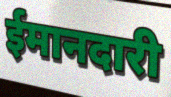
ईमानदारी